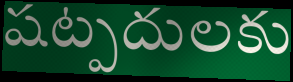
షట్పదులకు